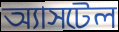
অ্যাসটেল